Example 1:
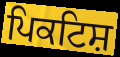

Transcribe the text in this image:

ਪਿਕਟਿਸ਼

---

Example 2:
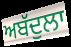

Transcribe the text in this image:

ਅਬੱਦੁਲਾ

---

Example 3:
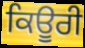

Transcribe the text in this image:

ਕਿਊਰੀ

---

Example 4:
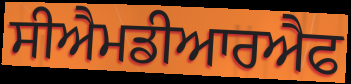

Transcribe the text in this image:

ਸੀਐਮਡੀਆਰਐਫ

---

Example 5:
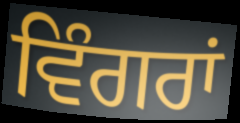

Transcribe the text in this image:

ਵਿੰਗਰਾਂ